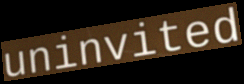
uninvited